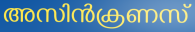
അസിൻക്രണസ്